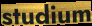
studium